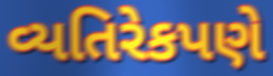
વ્યતિરેકપણે